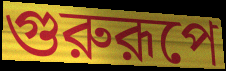
গুরুরূপে